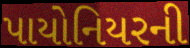
પાયોનિયરની